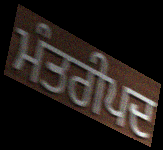
ਮੰਤਰੀਪਦ